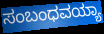
ಸಂಬಂಧವಯ್ಯಾ